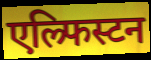
एल्फिस्टन